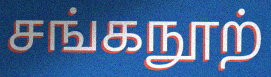
சங்கநூற்